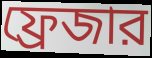
ফ্রেজার